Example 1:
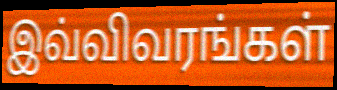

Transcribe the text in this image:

இவ்விவரங்கள்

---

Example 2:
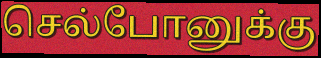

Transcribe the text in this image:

செல்போனுக்கு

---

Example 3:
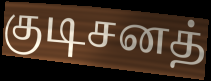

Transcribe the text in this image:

குடிசனத்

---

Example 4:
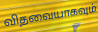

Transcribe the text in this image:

விதவையாகவும்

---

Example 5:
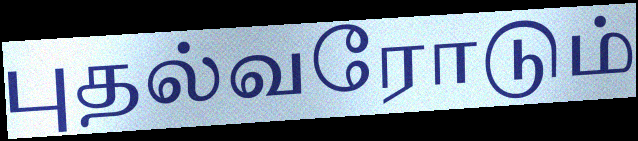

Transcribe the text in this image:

புதல்வரோடும்